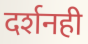
दर्शनही